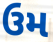
ઉમ